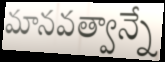
మానవత్వాన్నే